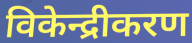
विकेन्द्रीकरण